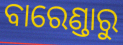
ବାରେଣ୍ଡାରୁ